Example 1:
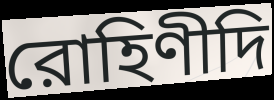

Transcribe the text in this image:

রোহিণীদি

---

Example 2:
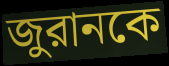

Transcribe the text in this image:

জুরানকে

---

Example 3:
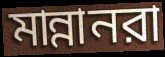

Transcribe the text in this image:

মান্নানরা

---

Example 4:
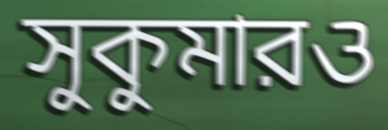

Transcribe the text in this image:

সুকুমারও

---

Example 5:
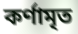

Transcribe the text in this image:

কর্ণামৃত